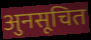
अुनसूचित